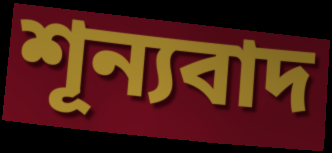
শূন্যবাদ